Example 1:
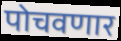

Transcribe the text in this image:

पोचवणार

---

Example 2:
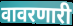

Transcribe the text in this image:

वावरणारी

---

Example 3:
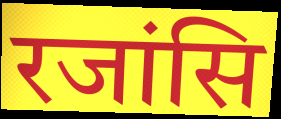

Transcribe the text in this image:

रजांसि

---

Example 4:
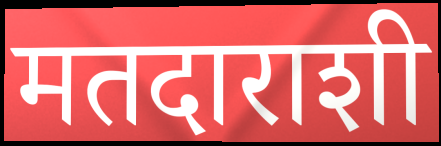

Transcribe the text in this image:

मतदाराशी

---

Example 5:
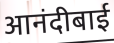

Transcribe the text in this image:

आनंदीबाई